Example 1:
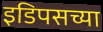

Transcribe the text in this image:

इडिपसच्या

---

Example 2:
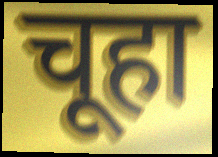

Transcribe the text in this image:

चूहा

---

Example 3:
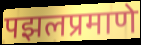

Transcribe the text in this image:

पझलप्रमाणे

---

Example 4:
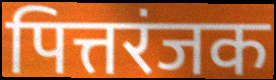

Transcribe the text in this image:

पित्तरंजक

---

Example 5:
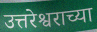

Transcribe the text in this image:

उत्तरेश्वराच्या